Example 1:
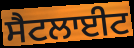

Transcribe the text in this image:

ਸੈਟਲਾਈਟ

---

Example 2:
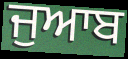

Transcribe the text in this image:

ਜੁਆਬ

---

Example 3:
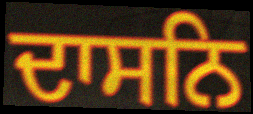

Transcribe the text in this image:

ਦਾਸਨਿ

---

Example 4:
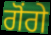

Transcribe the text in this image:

ਗੋਂਗੇ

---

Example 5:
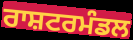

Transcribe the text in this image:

ਰਾਸ਼ਟਰਮੰਡਲ